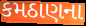
કમઠાણના